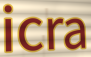
icra